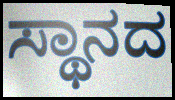
ಸ್ಥಾನದ